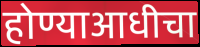
होण्याआधीचा